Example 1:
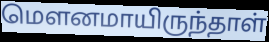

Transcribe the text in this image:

மௌனமாயிருந்தாள்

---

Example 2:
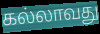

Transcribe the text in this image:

கல்லாவது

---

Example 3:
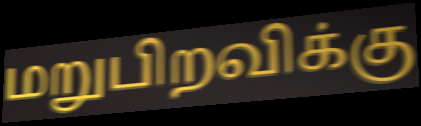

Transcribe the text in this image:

மறுபிறவிக்கு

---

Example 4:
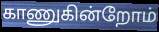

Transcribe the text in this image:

காணுகின்றோம்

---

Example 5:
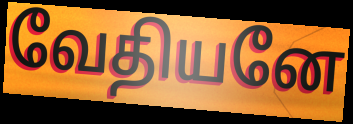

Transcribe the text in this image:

வேதியனே